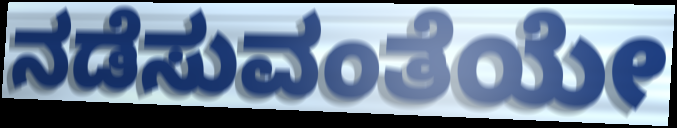
ನಡೆಸುವಂತೆಯೇ